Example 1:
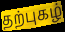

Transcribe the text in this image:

தற்புகழ்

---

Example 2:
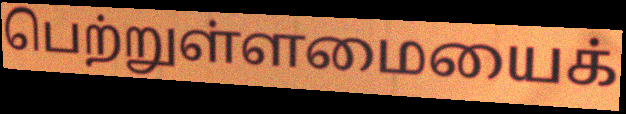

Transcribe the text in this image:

பெற்றுள்ளமையைக்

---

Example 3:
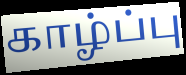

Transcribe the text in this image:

காழ்ப்பு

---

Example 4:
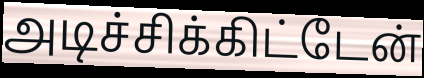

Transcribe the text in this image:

அடிச்சிக்கிட்டேன்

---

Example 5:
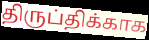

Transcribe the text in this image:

திருப்திக்காக